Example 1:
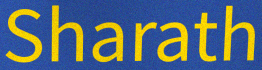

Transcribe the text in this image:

Sharath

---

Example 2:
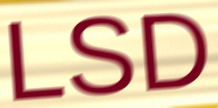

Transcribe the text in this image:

LSD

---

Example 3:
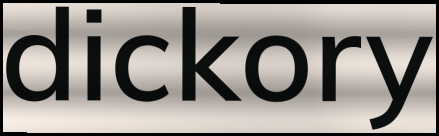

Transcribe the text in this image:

dickory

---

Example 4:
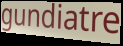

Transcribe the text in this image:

gundiatre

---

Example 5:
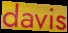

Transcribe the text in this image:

davis